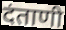
दंताणी